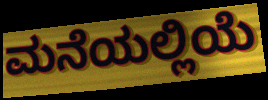
ಮನೆಯಲ್ಲಿಯೆ